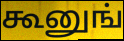
கூனுங்